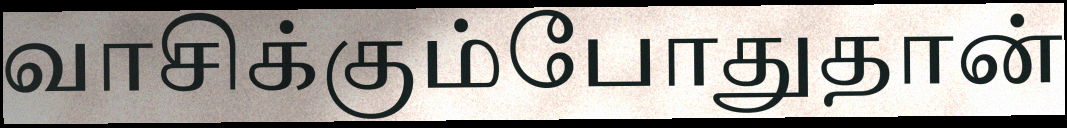
வாசிக்கும்போதுதான்